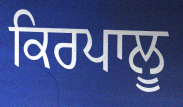
ਕਿਰਪਾਲੂ